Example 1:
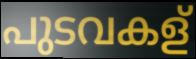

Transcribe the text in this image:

പുടവകള്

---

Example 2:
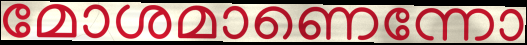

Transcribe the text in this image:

മോശമാണെന്നോ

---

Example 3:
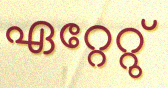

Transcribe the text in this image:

ഏറ്റേറ്റു്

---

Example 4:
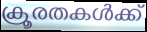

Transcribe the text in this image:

ക്രൂരതകൾക്ക്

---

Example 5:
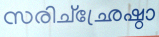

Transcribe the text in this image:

സരിച്ഛ്രേഷ്ഠാ